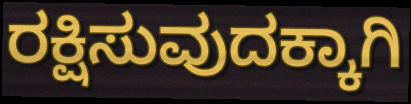
ರಕ್ಷಿಸುವುದಕ್ಕಾಗಿ